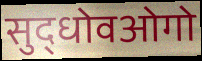
सुद्धोवओगो